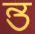
ন্ত